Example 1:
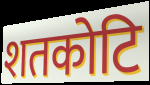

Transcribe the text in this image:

शतकोटि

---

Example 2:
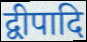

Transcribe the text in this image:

द्वीपादि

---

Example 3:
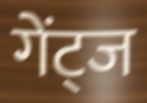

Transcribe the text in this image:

गेंट्ज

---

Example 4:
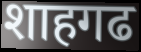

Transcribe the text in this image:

शाहगढ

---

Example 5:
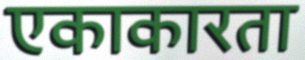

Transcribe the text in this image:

एकाकारता